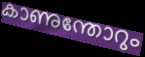
കാണുന്തോറും